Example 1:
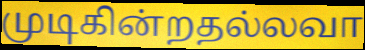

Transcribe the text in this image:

முடிகின்றதல்லவா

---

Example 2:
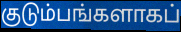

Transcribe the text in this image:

குடும்பங்களாகப்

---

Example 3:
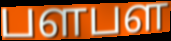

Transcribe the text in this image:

பளபள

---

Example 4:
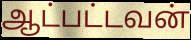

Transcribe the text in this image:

ஆட்பட்டவன்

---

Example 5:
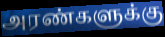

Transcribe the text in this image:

அரண்களுக்கு